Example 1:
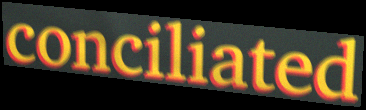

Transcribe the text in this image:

conciliated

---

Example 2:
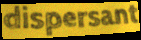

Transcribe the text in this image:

dispersant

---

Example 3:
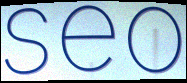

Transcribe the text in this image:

seo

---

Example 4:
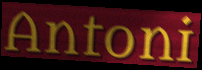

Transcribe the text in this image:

Antoni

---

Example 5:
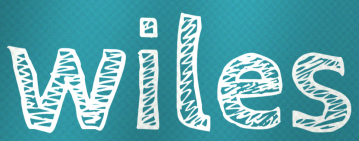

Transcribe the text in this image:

wiles